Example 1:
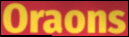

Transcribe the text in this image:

Oraons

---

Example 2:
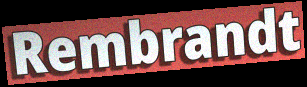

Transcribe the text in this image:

Rembrandt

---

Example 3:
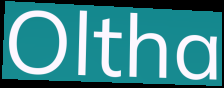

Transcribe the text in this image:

Oltha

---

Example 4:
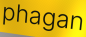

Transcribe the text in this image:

phagan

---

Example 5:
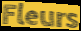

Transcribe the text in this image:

Fleurs